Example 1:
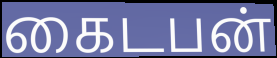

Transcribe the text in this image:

கைடபன்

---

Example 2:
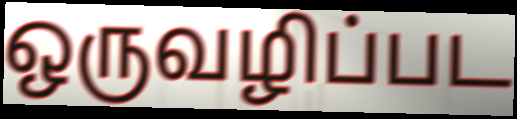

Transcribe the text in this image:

ஒருவழிப்பட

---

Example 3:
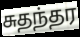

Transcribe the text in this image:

சுதந்தர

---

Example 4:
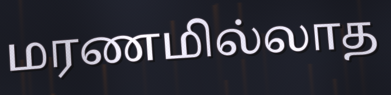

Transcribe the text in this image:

மரணமில்லாத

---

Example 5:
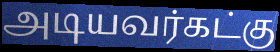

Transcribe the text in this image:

அடியவர்கட்கு